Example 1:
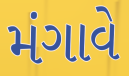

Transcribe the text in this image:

મંગાવે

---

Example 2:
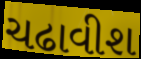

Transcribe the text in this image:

ચઢાવીશ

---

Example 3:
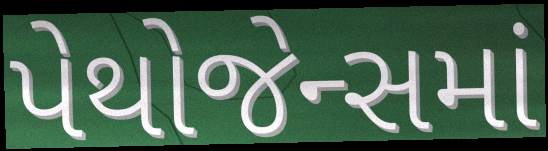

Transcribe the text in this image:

પેથોજેન્સમાં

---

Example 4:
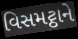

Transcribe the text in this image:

વિસમટ્ઠાને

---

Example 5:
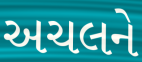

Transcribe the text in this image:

અચલને